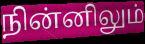
நின்னிலும்